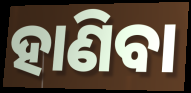
ହାଣିବା